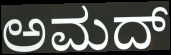
ಅಮದ್